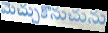
మెచ్చుకొనుచును